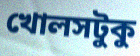
খোলসটুকু